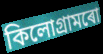
কিলোগ্ৰামৰো